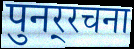
पुनर्रचना